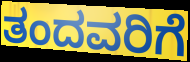
ತಂದವರಿಗೆ